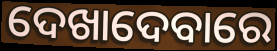
ଦେଖାଦେବାରେ